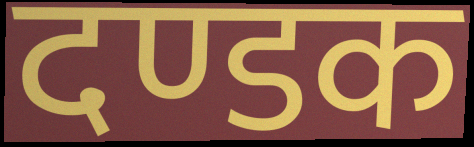
दण्डक